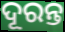
ଦୂରନ୍ତ